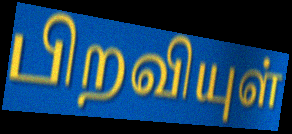
பிறவியுள்